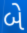
બે